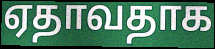
ஏதாவதாக